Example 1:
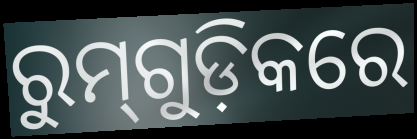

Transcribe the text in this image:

ରୁମ୍‌ଗୁଡ଼ିକରେ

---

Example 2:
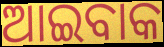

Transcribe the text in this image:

ଆଇବାକ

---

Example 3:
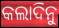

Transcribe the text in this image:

କଲାଦିନୁ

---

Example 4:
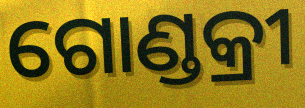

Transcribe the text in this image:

ଗୋଣ୍ଡକ୍ରୀ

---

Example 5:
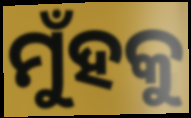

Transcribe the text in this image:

ମୁଁହକୁ